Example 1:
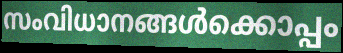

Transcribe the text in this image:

സംവിധാനങ്ങൾക്കൊപ്പം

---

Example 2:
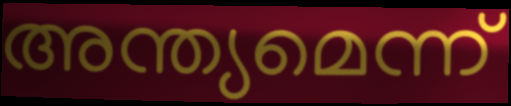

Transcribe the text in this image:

അന്ത്യമെന്ന്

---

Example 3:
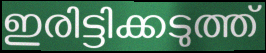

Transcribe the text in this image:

ഇരിട്ടിക്കടുത്ത്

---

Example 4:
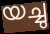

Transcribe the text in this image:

യച്ചു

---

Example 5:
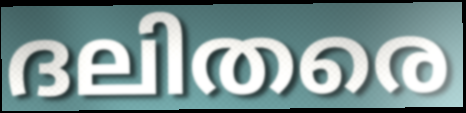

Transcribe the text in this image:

ദലിതരെ